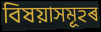
বিষয়াসমূহৰ